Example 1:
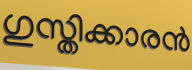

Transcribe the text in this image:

ഗുസ്തിക്കാരൻ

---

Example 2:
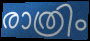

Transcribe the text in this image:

രാത്രിം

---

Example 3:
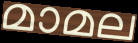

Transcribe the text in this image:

മാമല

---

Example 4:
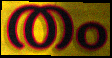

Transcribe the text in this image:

തം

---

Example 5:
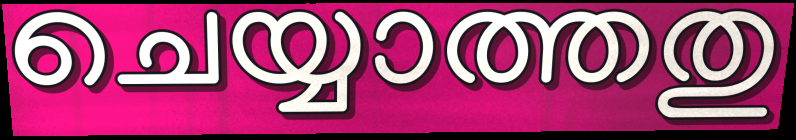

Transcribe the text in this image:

ചെയ്യാത്തതു